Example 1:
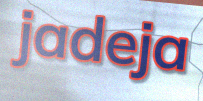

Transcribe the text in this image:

jadeja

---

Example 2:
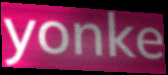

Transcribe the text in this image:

yonke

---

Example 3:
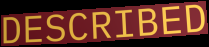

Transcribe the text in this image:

DESCRIBED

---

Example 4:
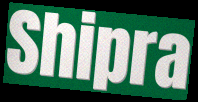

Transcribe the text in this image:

Shipra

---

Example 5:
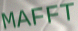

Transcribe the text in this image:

MAFFT